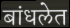
बांधलेत